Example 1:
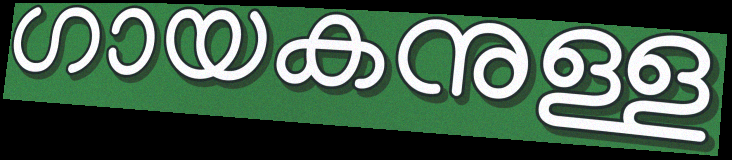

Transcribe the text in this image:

ഗായകനുള്ള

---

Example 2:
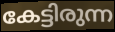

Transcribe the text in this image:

കേട്ടിരുന്ന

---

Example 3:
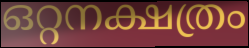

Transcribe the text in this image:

ഒറ്റനക്ഷത്രം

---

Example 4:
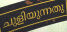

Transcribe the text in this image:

ചുളിയുന്നതു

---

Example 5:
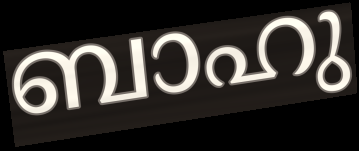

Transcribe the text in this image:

ബാഹു